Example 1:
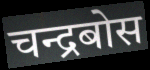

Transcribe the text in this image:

चन्द्रबोस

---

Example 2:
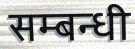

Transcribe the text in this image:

सम्बन्धी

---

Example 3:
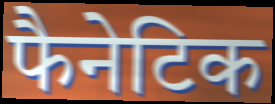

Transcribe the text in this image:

फैनेटिक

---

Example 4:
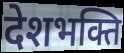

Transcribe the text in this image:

देशभक्ति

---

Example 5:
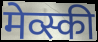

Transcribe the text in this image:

मेव्स्की